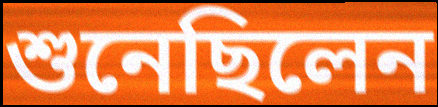
শুনেছিলেন